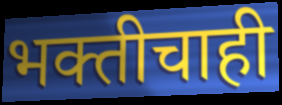
भक्तीचाही